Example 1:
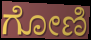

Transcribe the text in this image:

ಗೋಣಿ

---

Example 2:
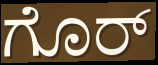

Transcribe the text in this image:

ಗೊರ್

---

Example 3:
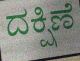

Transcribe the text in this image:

ದಕ್ಷಿಣೆ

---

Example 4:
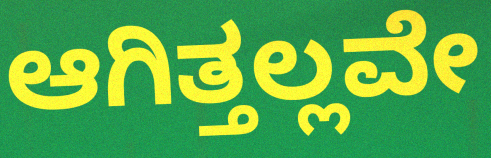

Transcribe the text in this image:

ಆಗಿತ್ತಲ್ಲವೇ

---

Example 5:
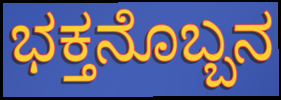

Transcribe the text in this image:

ಭಕ್ತನೊಬ್ಬನ